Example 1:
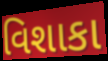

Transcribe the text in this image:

વિશાકા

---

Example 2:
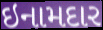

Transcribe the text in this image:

ઇનામદાર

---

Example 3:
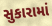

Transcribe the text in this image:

સુકારામાં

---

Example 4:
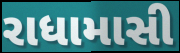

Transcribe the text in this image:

રાધામાસી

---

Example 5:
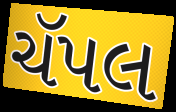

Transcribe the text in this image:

ચૅપલ